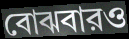
বোঝবারও